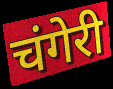
चंगेरी